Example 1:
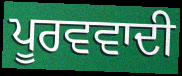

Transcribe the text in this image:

ਪੂਰਵਵਾਦੀ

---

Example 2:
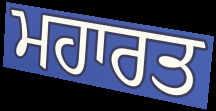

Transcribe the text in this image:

ਮਹਾਰਤ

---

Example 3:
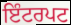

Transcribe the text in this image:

ਇੰਟਰਪਟ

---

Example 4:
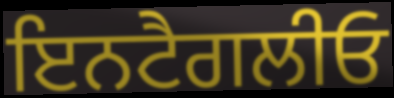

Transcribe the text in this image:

ਇਨਟੈਗਲੀਓ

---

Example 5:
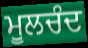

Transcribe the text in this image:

ਮੂਲਚੰਦ